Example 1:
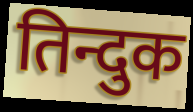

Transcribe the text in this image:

तिन्दुक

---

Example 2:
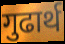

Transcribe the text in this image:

गुढार्थ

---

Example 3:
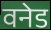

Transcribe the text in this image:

वनेड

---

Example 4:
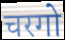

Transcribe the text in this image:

चरगो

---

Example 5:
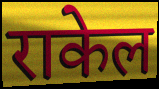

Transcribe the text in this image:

राकेल